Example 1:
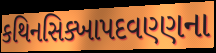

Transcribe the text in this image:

કથિનસિક્ખાપદવણ્ણના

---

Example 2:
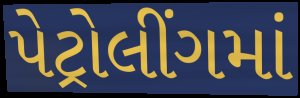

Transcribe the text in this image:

પેટ્રોલીંગમાં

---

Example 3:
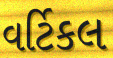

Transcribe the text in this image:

વર્ટિકલ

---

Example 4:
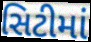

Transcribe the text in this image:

સિટીમાં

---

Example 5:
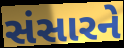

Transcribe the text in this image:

સંસારને